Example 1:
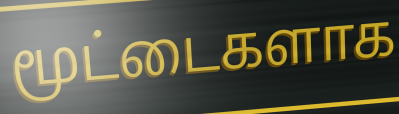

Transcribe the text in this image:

மூட்டைகளாக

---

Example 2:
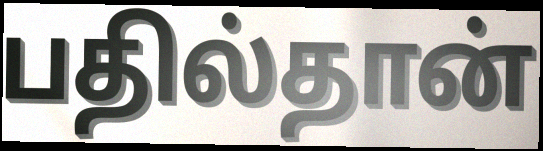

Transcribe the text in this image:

பதில்தான்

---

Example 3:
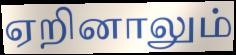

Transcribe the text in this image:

ஏறினாலும்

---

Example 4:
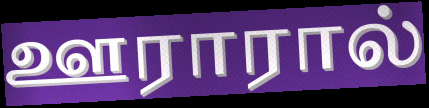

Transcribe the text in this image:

ஊராரால்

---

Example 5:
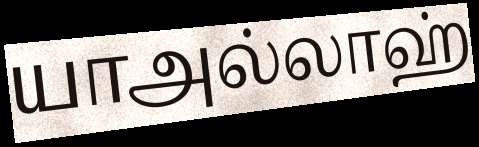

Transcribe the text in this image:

யாஅல்லாஹ்